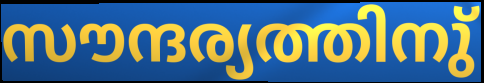
സൗന്ദര്യത്തിനു്